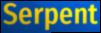
Serpent